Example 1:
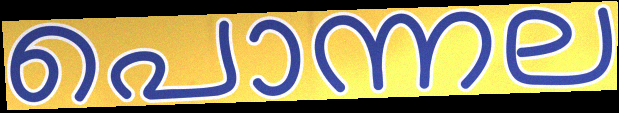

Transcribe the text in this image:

പൊന്നല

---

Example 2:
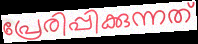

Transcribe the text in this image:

പ്രേരിപ്പിക്കുന്നത്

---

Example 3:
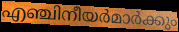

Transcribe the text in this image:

എഞ്ചിനീയർമാർക്കും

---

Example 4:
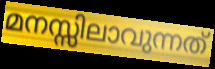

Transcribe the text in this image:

മനസ്സിലാവുന്നത്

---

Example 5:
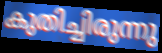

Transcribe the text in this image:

കുതിച്ചിരുന്നു